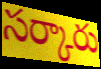
సర్కారు